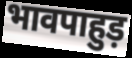
भावपाहुड़